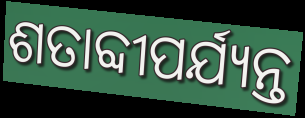
ଶତାବ୍ଦୀପର୍ଯ୍ୟନ୍ତ